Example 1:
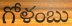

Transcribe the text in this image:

గోళంబు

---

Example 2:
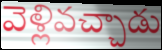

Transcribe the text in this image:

వెళ్లివచ్చాడు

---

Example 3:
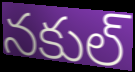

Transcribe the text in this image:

నకుల్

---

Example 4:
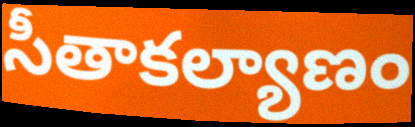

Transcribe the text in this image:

సీతాకల్యాణం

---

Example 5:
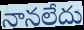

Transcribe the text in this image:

నానలేదు